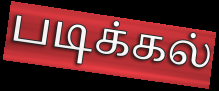
படிக்கல்